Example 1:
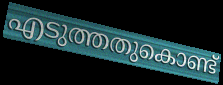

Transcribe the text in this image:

എടുത്തതുകൊണ്ട്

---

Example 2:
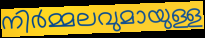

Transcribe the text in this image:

നിർമ്മലവുമായുള്ള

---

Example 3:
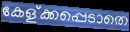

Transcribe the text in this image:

കേള്ക്കപ്പെടാതെ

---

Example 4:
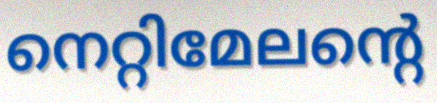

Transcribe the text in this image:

നെറ്റിമേലന്റെ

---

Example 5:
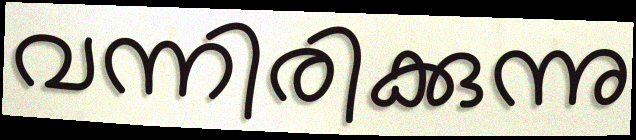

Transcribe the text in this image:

വന്നിരിക്കുന്നു